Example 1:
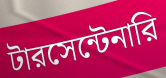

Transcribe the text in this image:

টারসেন্টেনারি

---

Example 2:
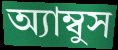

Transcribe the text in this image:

অ্যাম্বুস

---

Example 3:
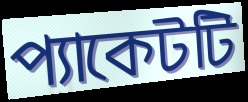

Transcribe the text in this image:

প্যাকেটটি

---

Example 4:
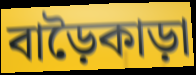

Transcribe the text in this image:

বাড়ৈকাড়া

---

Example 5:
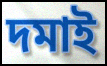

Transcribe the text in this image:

দমাই